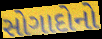
સોગાદોનો